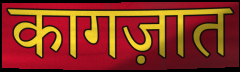
कागज़ात